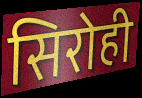
सिरोही